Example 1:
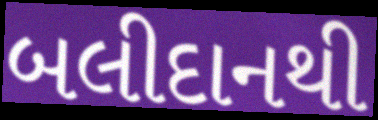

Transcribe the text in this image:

બલીદાનથી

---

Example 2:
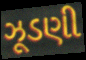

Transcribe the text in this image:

ઝૂડણી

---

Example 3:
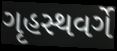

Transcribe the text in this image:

ગૃહસ્થવર્ગે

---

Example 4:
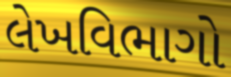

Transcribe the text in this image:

લેખવિભાગો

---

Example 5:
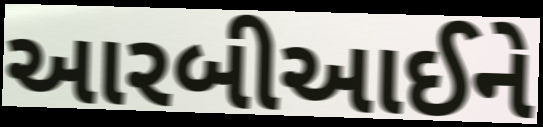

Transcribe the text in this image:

આરબીઆઈને